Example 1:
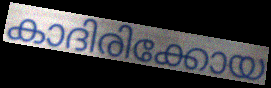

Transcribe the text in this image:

കാദിരിക്കോയ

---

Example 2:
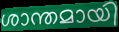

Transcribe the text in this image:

ശാന്തമായി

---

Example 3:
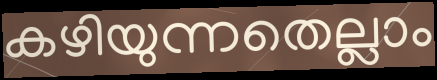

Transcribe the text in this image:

കഴിയുന്നതെല്ലാം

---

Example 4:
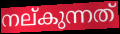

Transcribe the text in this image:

നല്കുന്നത്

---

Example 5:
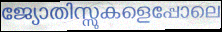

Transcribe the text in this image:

ജ്യോതിസ്സുകളെപ്പോലെ